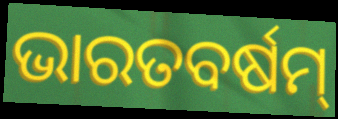
ଭାରତବର୍ଷମ୍